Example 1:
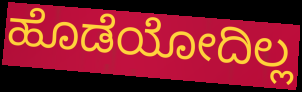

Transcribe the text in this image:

ಹೊಡೆಯೋದಿಲ್ಲ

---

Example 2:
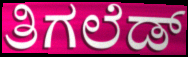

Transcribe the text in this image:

ತಿಗಲೆಡ್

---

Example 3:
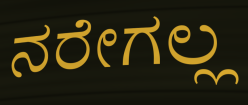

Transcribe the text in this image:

ನರೇಗಲ್ಲ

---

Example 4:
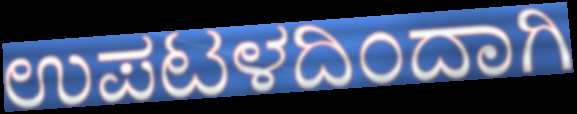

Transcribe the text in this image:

ಉಪಟಳದಿಂದಾಗಿ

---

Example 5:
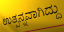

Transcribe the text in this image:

ಉತ್ಪನ್ನವಾಗಿದ್ದು